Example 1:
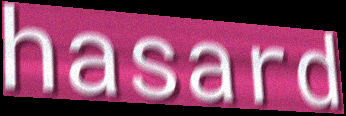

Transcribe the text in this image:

hasard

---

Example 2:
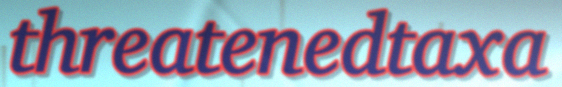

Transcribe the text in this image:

threatenedtaxa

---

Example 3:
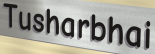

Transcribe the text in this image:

Tusharbhai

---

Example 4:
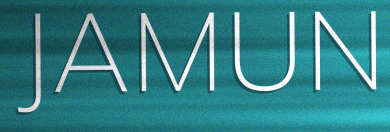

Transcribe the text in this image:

JAMUN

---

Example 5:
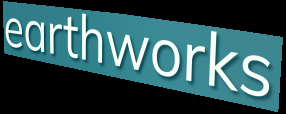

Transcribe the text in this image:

earthworks